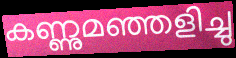
കണ്ണുമഞ്ഞളിച്ചു